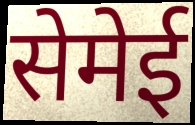
सेमेई